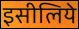
इसीलिये